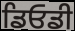
ਡਿਓਡੀ